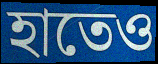
হাতেও